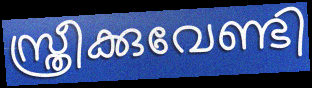
സ്ത്രീക്കുവേണ്ടി